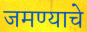
जमण्याचे